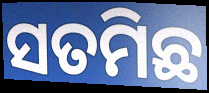
ସତମିଛ